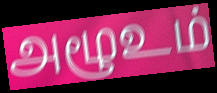
அழூஉம்